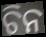
ଚିନ